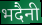
भदैनी